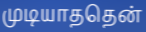
முடியாததென்